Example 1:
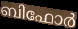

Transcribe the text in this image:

ബിഫോർ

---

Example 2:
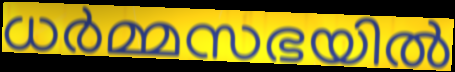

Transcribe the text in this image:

ധർമ്മസഭയിൽ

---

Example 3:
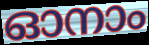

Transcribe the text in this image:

ഓനാം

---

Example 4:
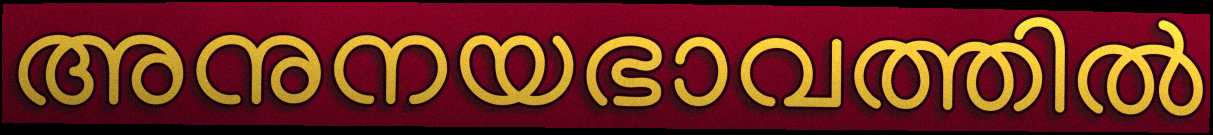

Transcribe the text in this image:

അനുനയഭാവത്തിൽ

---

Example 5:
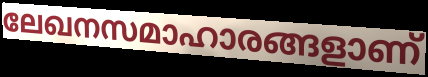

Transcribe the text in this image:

ലേഖനസമാഹാരങ്ങളാണ്